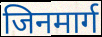
जिनमार्ग